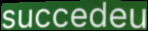
succedeu